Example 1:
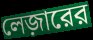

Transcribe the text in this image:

লেজ়ারের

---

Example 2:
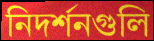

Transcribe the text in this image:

নিদর্শনগুলি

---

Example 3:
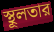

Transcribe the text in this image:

স্থূলতার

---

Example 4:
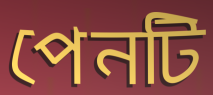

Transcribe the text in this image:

পেনটি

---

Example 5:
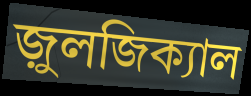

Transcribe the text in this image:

জ়ুলজিক্যাল